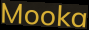
Mooka